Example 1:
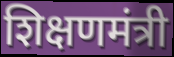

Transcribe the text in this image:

शिक्षणमंत्री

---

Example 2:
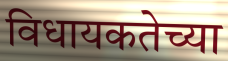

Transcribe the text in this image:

विधायकतेच्या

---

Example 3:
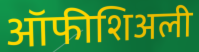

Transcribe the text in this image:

ऑफीशिअली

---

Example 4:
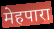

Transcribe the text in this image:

मेहपारा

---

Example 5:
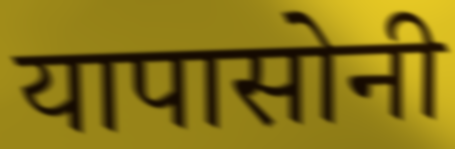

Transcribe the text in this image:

यापासोनी